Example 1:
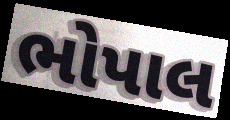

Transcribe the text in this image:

ભોપાલ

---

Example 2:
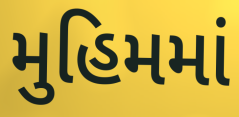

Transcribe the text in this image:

મુહિમમાં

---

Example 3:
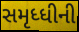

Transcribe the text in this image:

સમૃધ્ધીની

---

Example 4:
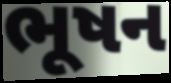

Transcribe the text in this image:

ભૂષન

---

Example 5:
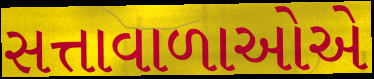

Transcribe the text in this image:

સત્તાવાળાઓએ